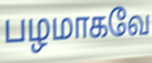
பழமாகவே